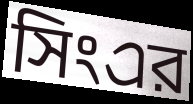
সিংএর